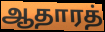
ஆதாரத்